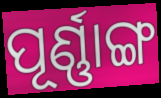
ପୂର୍ଣ୍ଣାଙ୍ଗ